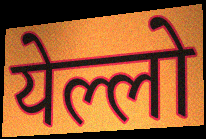
येल्लो